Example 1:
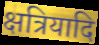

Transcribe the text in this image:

क्षत्रियादि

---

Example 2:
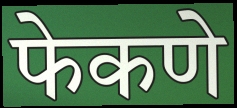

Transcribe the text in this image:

फेकणे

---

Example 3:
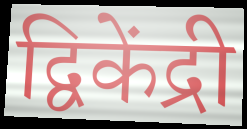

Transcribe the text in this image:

द्विकेंद्री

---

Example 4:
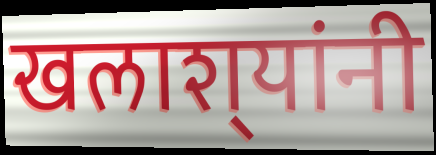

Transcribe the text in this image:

खलाश्यांनी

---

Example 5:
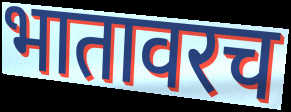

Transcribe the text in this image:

भातावरच